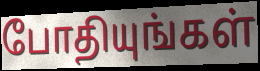
போதியுங்கள்